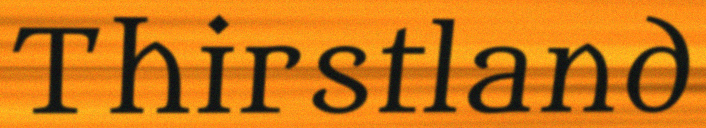
Thirstland